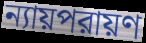
ন্যায়পরায়ণ